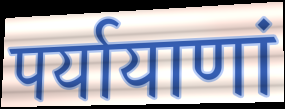
पर्यायाणां